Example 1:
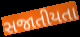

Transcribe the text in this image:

સજાતીયતા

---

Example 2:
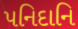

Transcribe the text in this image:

પનિદાનિ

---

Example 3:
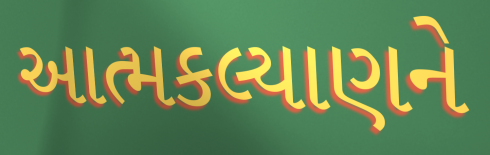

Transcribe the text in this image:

આત્મકલ્યાણને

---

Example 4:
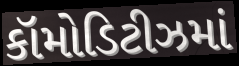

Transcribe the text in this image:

કૉમોડિટીઝમાં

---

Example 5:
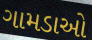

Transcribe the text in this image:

ગામડાઓ